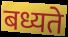
बध्यते